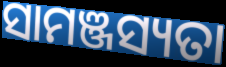
ସାମଞ୍ଜସ୍ୟତା